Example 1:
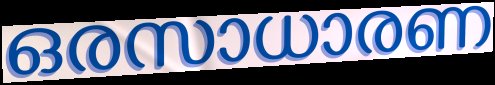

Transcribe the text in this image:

ഒരസാധാരണ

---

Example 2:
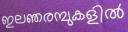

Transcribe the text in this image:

ഇലഞരമ്പുകളിൽ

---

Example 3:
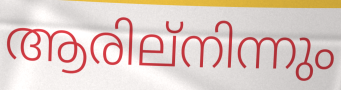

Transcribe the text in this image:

ആരില്നിന്നും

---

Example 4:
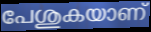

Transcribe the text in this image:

പേശുകയാണ്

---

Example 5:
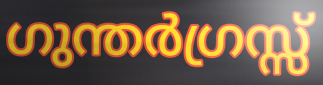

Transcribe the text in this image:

ഗുന്തർഗ്രസ്സ്